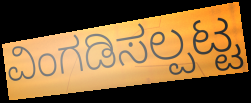
ವಿಂಗಡಿಸಲ್ಪಟ್ಟ